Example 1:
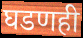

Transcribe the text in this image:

घडणही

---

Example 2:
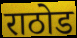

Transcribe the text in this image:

राठोड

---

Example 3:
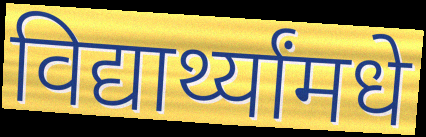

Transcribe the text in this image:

विद्यार्थ्यांमधे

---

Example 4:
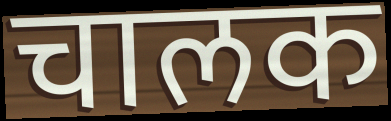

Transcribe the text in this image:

चालक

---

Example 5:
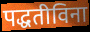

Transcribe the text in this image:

पद्धतीविना